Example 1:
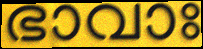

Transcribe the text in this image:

ഭാവാഃ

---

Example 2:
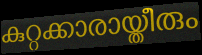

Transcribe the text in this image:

കുറ്റക്കാരായ്തീരും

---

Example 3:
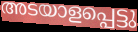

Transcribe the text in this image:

അടയാളപ്പെട്ടു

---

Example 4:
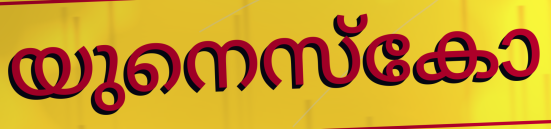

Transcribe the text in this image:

യുനെസ്കോ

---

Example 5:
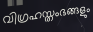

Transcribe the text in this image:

വിഗ്രഹസ്തംഭങ്ങളും